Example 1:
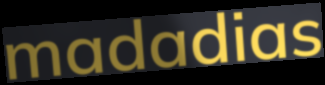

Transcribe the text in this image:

madadias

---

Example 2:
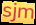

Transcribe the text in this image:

sjm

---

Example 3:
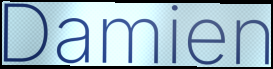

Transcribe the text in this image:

Damien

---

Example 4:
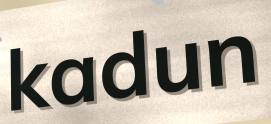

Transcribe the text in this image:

kadun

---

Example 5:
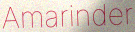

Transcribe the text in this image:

Amarinder